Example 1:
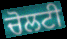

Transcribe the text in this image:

ਚੋਲਟੀ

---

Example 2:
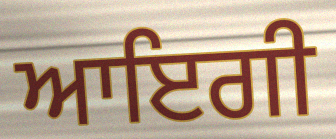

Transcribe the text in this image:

ਆਇਗੀ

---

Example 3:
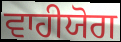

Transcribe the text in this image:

ਵਾਹੀਯੋਗ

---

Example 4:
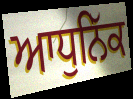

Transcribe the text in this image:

ਆਧੁਨਿੱਕ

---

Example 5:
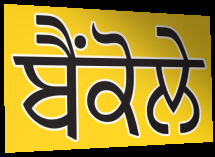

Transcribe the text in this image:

ਬੈਂਕੋਲੇ